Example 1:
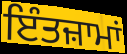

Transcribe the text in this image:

ਇੰਤਜ਼ਾਮਾਂ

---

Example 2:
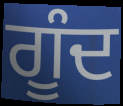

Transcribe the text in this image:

ਗੂੰਦ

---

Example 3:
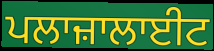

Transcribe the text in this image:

ਪਲਾਜ਼ਾਲਾਈਟ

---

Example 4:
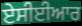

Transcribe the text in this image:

ਏਸੀਈਆਰ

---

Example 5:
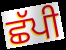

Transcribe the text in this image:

ਛੱਪੀ